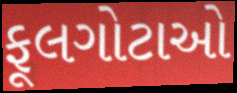
ફૂલગોટાઓ